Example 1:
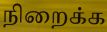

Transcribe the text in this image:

நிறைக்க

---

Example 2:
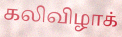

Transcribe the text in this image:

கலிவிழாக்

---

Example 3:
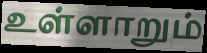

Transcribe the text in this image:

உள்ளாறும்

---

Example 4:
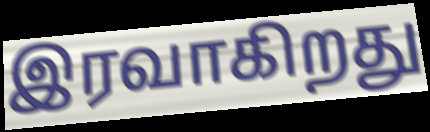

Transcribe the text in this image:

இரவாகிறது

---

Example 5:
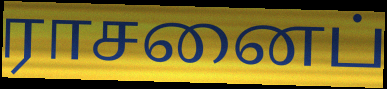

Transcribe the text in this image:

ராசனைப்